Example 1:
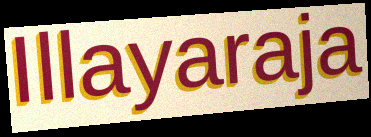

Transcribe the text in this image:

Illayaraja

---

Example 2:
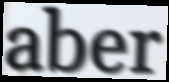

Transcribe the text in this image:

aber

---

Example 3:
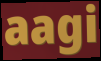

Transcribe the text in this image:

aagi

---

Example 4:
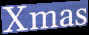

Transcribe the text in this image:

Xmas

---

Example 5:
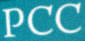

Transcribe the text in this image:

PCC